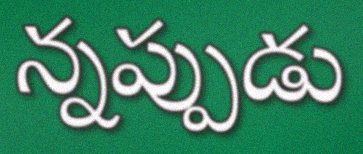
న్నప్పుడు